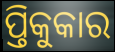
ପ୍ତିକୁକାର